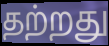
தற்றது